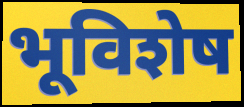
भूविशेष